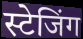
स्टेजिंग